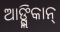
ଆଙ୍ଗ୍ଲିକାନ୍